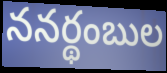
ననర్థంబుల